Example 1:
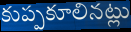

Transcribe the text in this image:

కుప్పకూలినట్లు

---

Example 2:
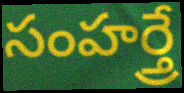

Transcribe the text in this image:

సంహర్త్రే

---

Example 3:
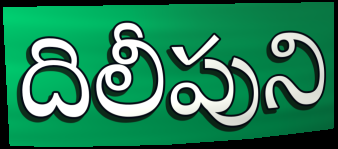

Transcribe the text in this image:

దిలీపుని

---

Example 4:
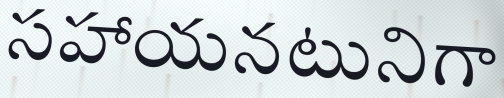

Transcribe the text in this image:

సహాయనటునిగా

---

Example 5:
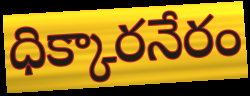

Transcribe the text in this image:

ధిక్కారనేరం